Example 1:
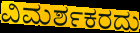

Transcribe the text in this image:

ವಿಮರ್ಶಕರದು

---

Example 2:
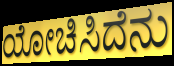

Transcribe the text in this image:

ಯೋಚಿಸಿದೆನು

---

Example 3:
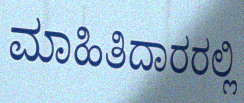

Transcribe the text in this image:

ಮಾಹಿತಿದಾರರಲ್ಲಿ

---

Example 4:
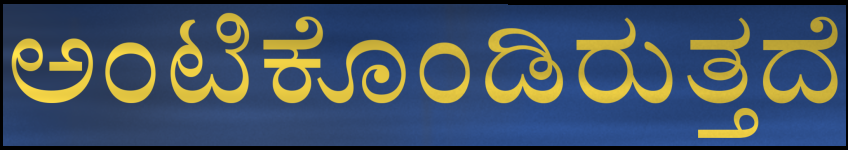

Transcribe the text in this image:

ಅಂಟಿಕೊಂಡಿರುತ್ತದೆ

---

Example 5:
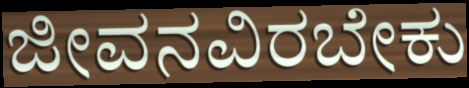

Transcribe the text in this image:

ಜೀವನವಿರಬೇಕು